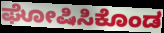
ಘೋಷಿಸಿಕೊಂಡ